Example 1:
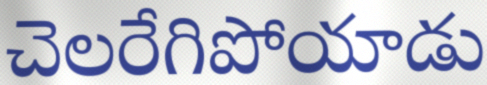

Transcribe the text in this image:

చెలరేగిపోయాడు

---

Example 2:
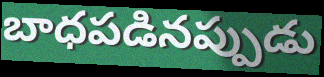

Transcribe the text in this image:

బాధపడినప్పుడు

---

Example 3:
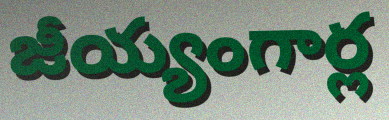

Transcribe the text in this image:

జీయ్యంగార్ల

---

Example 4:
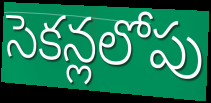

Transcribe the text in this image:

సెకన్లలోపు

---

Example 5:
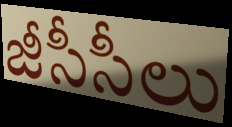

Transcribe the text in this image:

జీసీసీలు